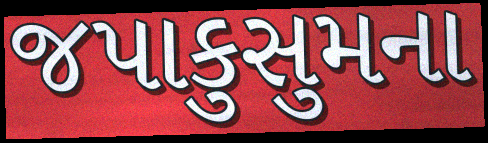
જપાકુસુમના